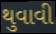
થુવાવી